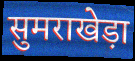
सुमराखेड़ा